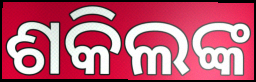
ଶକିଲଙ୍କ